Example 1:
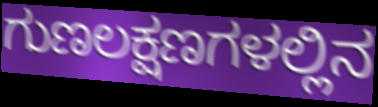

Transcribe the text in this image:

ಗುಣಲಕ್ಷಣಗಳಲ್ಲಿನ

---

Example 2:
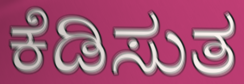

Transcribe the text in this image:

ಕೆಡಿಸುತ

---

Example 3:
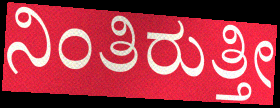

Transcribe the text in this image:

ನಿಂತಿರುತ್ತೀ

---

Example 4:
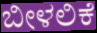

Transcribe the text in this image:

ಬೀಳಲಿಕೆ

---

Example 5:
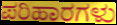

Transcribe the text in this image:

ಪರಿಹಾರಗಳು